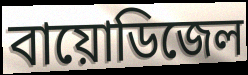
বায়োডিজেল